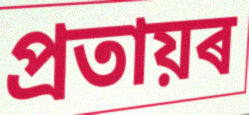
প্ৰতায়ৰ